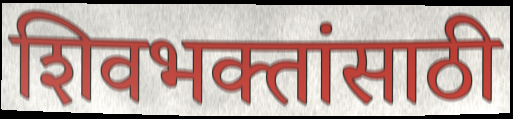
शिवभक्तांसाठी